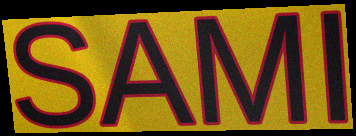
SAMI